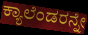
ಕ್ಯಾಲೆಂಡರನ್ನೇ